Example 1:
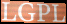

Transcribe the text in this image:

LGPL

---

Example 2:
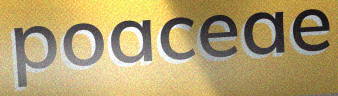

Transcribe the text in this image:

poaceae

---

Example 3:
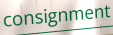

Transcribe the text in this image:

consignment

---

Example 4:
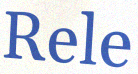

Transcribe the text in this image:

Rele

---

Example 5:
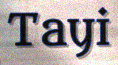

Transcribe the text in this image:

Tayi